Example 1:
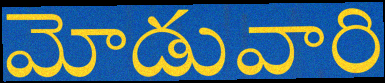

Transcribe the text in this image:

మోడువారి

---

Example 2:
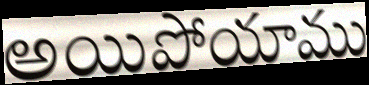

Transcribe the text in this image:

అయిపోయాము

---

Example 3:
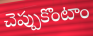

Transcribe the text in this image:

చెప్పుకొంటాం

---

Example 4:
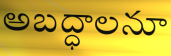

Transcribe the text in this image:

అబద్ధాలనూ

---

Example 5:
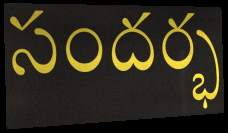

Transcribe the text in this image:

సందర్భ